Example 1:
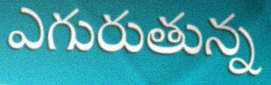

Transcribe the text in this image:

ఎగురుతున్న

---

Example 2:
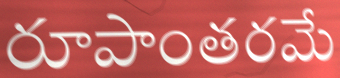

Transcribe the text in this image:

రూపాంతరమే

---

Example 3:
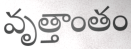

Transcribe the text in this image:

వృత్తాంతం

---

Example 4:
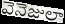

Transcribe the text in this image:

వెనెజులా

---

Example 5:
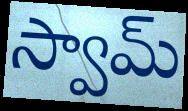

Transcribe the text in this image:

స్వామ్